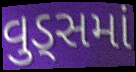
વુડ્સમાં